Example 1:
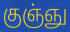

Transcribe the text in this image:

குஞ்ஞு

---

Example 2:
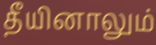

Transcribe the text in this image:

தீயினாலும்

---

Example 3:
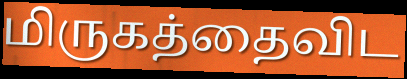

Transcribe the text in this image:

மிருகத்தைவிட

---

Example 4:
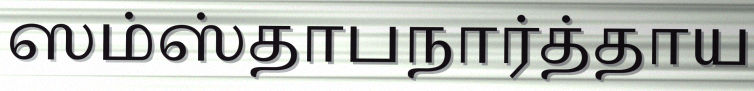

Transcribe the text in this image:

ஸம்ஸ்தாபநார்த்தாய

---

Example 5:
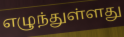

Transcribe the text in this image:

எழுந்துள்ளது